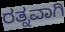
ರತ್ನವಾಗಿ